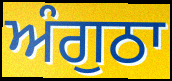
ਅੰਗੁਠਾ